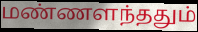
மண்ணளந்ததும்